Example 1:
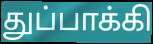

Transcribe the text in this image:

துப்பாக்கி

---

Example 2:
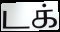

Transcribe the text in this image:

டக்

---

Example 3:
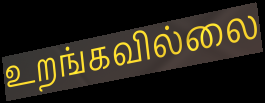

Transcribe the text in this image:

உறங்கவில்லை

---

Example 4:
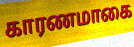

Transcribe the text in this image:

காரணமாகை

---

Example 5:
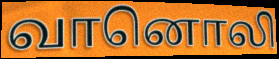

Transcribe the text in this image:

வானொலி